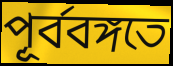
পূর্ববঙ্গতে